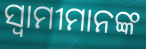
ସ୍ବାମୀମାନଙ୍କ